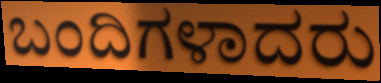
ಬಂದಿಗಳಾದರು